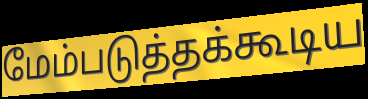
மேம்படுத்தக்கூடிய